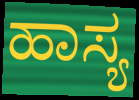
ಹಾಸ್ಯ